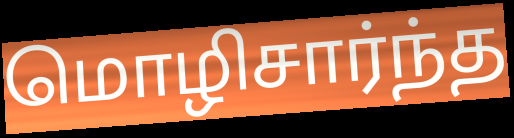
மொழிசார்ந்த